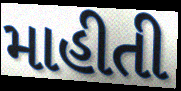
માહીતી